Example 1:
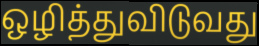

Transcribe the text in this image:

ஒழித்துவிடுவது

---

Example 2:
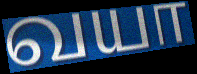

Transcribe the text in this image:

வயா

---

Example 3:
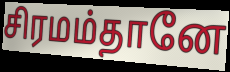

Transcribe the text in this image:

சிரமம்தானே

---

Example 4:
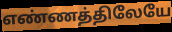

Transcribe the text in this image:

எண்ணத்திலேயே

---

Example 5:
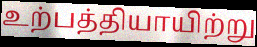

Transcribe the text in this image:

உற்பத்தியாயிற்று